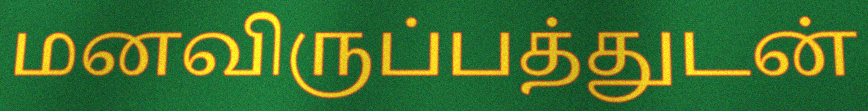
மனவிருப்பத்துடன்